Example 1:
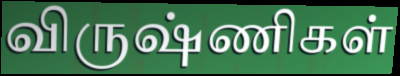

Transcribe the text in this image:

விருஷ்ணிகள்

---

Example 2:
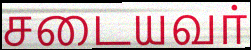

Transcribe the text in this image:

சடையவர்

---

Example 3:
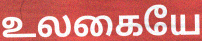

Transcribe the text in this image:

உலகையே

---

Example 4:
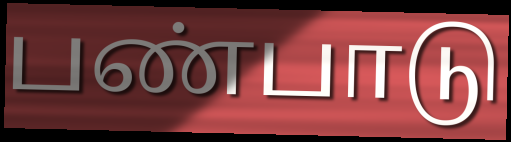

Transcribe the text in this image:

பண்பாடு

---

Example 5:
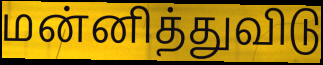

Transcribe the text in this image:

மன்னித்துவிடு